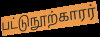
பட்டுநூற்காரர்